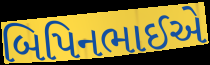
બિપિનભાઈએ